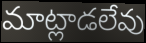
మాట్లాడలేవు